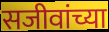
सजीवांच्या